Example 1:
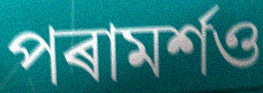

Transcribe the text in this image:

পৰামৰ্শও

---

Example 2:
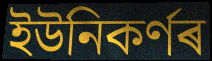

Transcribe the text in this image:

ইউনিকৰ্ণৰ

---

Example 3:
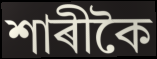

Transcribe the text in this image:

শাৰীকৈ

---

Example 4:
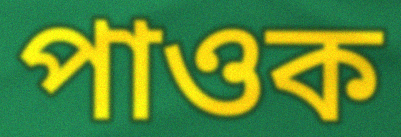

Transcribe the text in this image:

পাওক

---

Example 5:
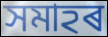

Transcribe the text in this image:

সমাহৰ